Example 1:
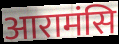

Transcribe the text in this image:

आरामंसि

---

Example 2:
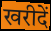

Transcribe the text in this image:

खरीदें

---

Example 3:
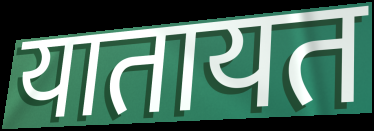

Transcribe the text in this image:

यातायत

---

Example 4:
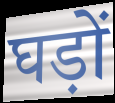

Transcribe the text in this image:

घड़ों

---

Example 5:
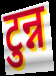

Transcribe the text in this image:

टुन्न